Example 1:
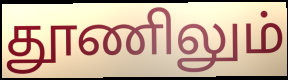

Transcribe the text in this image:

தூணிலும்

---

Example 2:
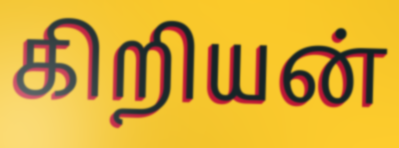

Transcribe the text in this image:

கிறியன்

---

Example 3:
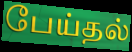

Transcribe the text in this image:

பேய்தல்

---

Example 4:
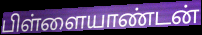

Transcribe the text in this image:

பிள்ளையாண்டன்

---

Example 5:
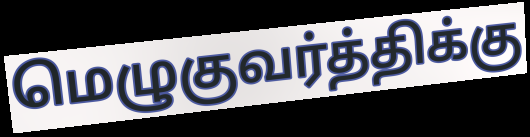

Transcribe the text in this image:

மெழுகுவர்த்திக்கு